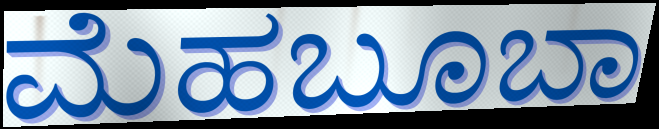
ಮೆಹಬೂಬಾ